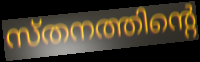
സ്തനത്തിന്റെ